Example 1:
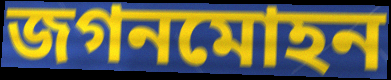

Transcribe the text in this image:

জগনমোহন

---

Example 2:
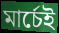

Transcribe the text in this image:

মার্চেই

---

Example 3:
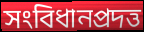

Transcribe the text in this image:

সংবিধানপ্রদত্ত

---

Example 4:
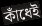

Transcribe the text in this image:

কাঁধেই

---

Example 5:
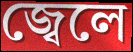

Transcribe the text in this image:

জ্বেলে